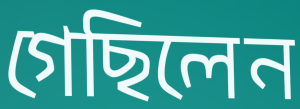
গেছিলেন